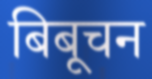
बिबूचन